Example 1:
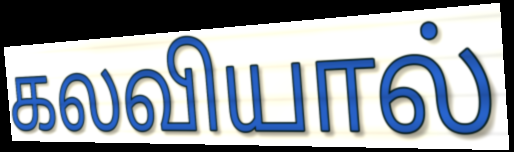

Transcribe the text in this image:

கலவியால்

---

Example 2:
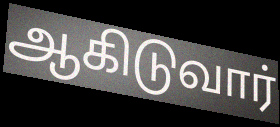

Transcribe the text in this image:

ஆகிடுவார்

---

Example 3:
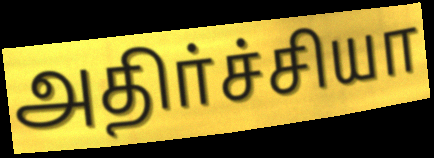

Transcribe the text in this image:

அதிர்ச்சியா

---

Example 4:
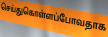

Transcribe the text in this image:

செய்துகொள்ளப்போவதாக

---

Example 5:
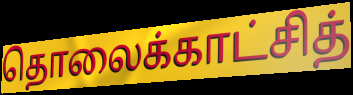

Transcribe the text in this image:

தொலைக்காட்சித்